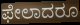
ಫೇಲಾದರೂ